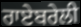
ਰਾਏਬਰੇਲੀ